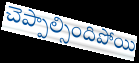
చెప్పాల్సిందిపోయి